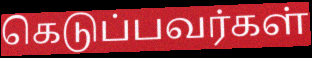
கெடுப்பவர்கள்